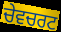
ਚੇਵਚਰਟ